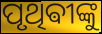
ପୃଥିଵୀଙ୍କୁ